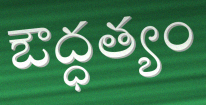
ఔద్ధత్యం